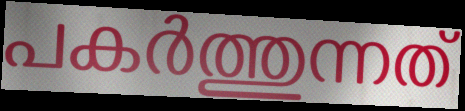
പകർത്തുന്നത്